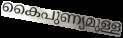
കൈപുണ്യമുള്ള